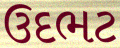
ઉદભટ